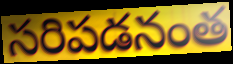
సరిపడనంత